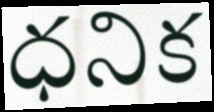
ధనిక